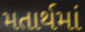
મતાર્થમાં